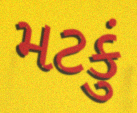
મટકું